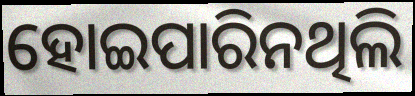
ହୋଇପାରିନଥିଲି